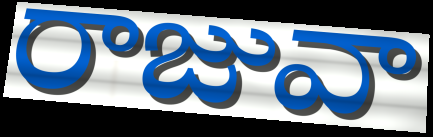
రాజువా